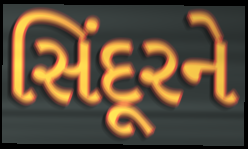
સિંદૂરને